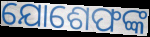
ଯୋଶେଫଙ୍କ